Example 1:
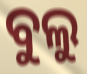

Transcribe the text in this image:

ବୁଲୁ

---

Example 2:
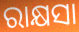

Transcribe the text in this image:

ରାକ୍ଷସା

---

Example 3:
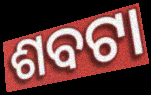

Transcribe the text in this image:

ଶବଟା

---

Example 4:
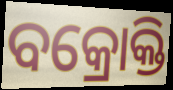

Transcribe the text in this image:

ବକ୍ରୋକ୍ତି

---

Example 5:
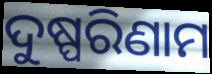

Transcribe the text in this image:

ଦୁଷ୍ପରିଣାମ